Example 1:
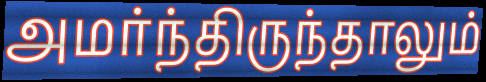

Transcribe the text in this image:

அமர்ந்திருந்தாலும்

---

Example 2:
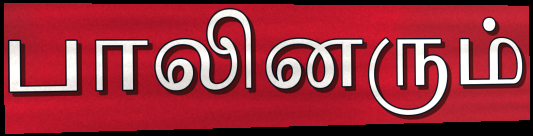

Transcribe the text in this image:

பாலினரும்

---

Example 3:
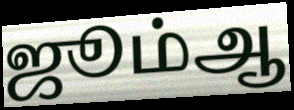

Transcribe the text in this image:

ஜூம்ஆ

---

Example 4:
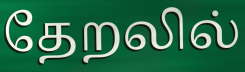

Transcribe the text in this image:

தேறலில்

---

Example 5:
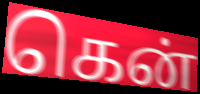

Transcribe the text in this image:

கென்